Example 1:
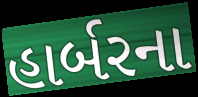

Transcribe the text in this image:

હાર્બરના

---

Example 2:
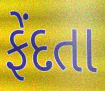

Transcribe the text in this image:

ફેંદતા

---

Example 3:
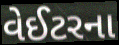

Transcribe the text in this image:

વેઈટરના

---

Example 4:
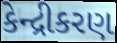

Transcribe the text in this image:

કેન્દ્રીકરણ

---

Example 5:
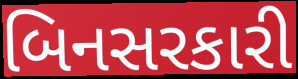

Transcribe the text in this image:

બિનસરકારી